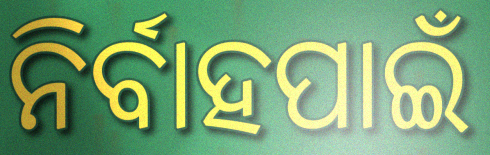
ନିର୍ବାହପାଇଁ